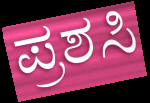
ಪ್ರಶಸಿ